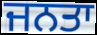
ਜਨਤਾ